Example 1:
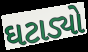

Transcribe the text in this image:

ઘટાડ્યો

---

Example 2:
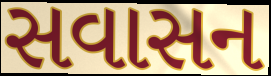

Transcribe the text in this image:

સવાસન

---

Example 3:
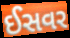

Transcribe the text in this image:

ઈસવર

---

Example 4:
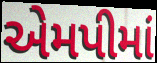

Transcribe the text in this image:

એમપીમાં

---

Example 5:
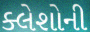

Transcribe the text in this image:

ક્લેશોની